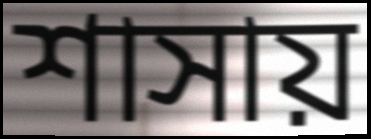
শাসায়